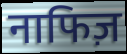
नाफिज़